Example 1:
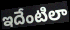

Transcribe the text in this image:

ఇదేంటిలా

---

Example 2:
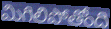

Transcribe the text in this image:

మిగిలిపోతోంది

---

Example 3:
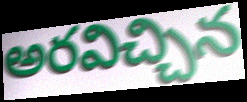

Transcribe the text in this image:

అరవిచ్చిన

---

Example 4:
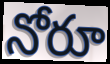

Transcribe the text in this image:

నోరూ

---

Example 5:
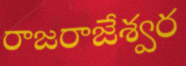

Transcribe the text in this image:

రాజరాజేశ్వర